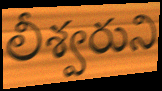
లీశ్వరుని